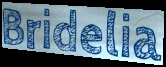
Bridelia